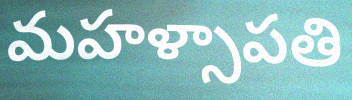
మహళ్సాపతి